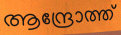
ആന്ദ്രോത്ത്